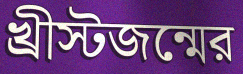
খ্রীস্টজন্মের